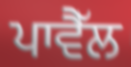
ਪਾਵੈੱਲ